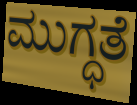
ಮುಗ್ಧತೆ